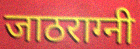
जाठराग्नी